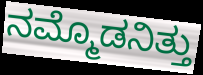
ನಮ್ಮೊಡನಿತ್ತು